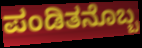
ಪಂಡಿತನೊಬ್ಬ